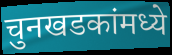
चुनखडकांमध्ये